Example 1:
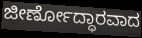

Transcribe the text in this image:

ಜೀರ್ಣೋದ್ಧಾರವಾದ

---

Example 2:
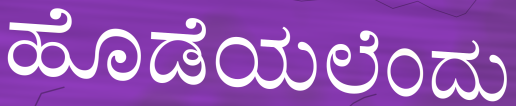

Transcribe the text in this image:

ಹೊಡೆಯಲೆಂದು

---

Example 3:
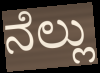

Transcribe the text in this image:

ನೆಲ್ಲು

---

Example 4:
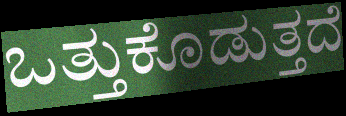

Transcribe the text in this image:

ಒತ್ತುಕೊಡುತ್ತದೆ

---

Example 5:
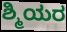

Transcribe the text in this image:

ಶ್ಮಿಯರ